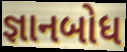
જ્ઞાનબોધ